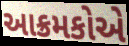
આક્રમકોએ